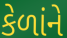
કેળાંને